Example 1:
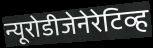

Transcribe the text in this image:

न्यूरोडीजेनेरेटिव्ह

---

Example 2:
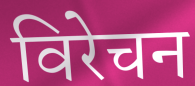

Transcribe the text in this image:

विरेचन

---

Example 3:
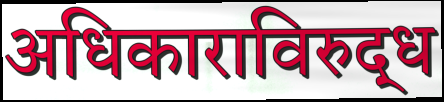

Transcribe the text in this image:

अधिकाराविरुद्ध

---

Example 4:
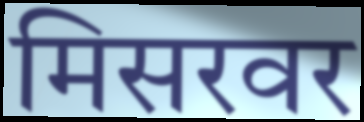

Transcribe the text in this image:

मिसरवर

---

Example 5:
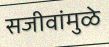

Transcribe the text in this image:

सजीवांमुळे